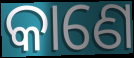
କାଣେ